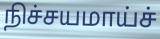
நிச்சயமாய்ச்